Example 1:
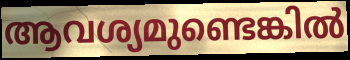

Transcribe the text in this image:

ആവശ്യമുണ്ടെങ്കിൽ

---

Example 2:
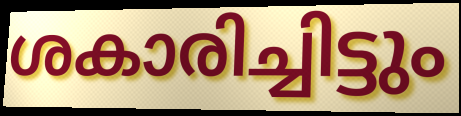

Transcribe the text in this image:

ശകാരിച്ചിട്ടും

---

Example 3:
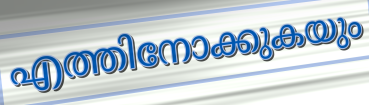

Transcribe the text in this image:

എത്തിനോക്കുകയും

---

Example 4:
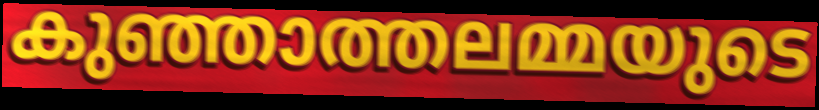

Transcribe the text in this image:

കുഞ്ഞാത്തലമ്മയുടെ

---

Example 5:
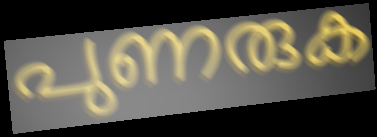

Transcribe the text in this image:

പുണരുക